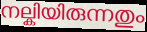
നല്കിയിരുന്നതും